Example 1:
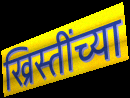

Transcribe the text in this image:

ख्रिस्तींच्या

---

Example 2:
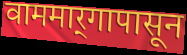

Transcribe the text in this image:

वाममार्गापासून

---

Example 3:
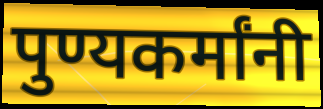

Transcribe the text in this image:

पुण्यकर्मांनी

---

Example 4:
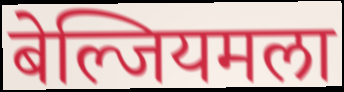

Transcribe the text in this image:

बेल्जियमला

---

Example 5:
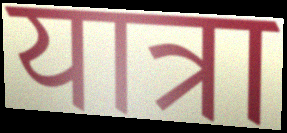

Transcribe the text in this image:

यात्रा